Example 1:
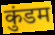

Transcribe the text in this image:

कुंडम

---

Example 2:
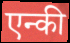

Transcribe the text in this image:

एन्की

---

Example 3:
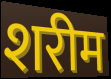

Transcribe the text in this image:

शरीम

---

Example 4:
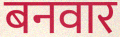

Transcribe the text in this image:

बनवार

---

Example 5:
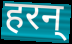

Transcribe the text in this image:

हरन्